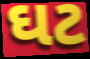
ઘટ